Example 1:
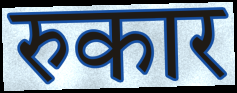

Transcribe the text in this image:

रुकार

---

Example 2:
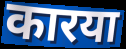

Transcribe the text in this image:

कारया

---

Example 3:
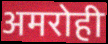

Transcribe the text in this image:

अमरोही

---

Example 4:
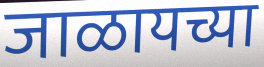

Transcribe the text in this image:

जाळायच्या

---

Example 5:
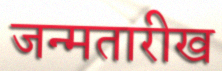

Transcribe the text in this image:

जन्मतारीख